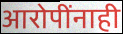
आरोपींनाही